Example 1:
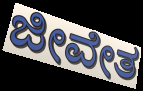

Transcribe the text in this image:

ಜೀವೇತ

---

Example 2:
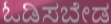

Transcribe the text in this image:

ಓಡಿಸಬೇಡ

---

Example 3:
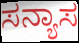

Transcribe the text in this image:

ಸನ್ಯಾಸ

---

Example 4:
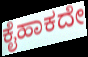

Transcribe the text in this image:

ಕೈಹಾಕದೇ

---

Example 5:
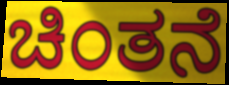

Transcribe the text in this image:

ಚಿಂತನೆ